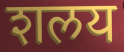
शलय